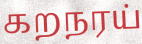
கறநரய்